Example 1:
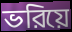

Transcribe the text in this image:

ভরিয়ে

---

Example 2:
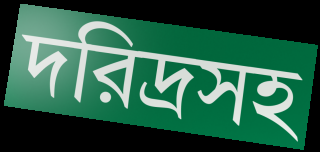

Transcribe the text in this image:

দরিদ্রসহ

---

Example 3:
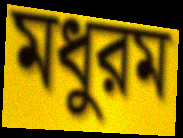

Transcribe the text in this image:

মধুরম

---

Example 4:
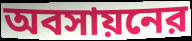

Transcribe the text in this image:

অবসায়নের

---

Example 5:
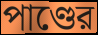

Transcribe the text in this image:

পাণ্ডের